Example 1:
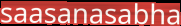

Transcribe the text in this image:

saasanasabha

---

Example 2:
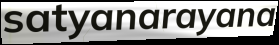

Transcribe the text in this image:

satyanarayana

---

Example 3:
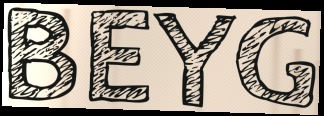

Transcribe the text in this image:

BEYG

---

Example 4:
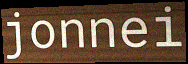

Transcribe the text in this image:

jonnei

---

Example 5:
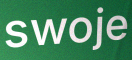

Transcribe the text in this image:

swoje